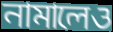
নামালেও